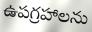
ఉపగ్రహాలను